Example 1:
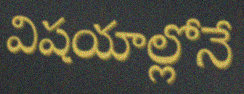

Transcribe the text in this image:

విషయాల్లోనే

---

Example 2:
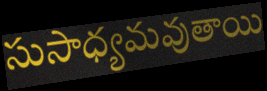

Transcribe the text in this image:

సుసాధ్యమవుతాయి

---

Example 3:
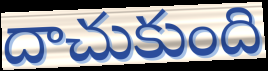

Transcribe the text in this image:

దాచుకుంది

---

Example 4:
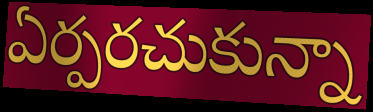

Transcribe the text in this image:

ఏర్పరచుకున్నా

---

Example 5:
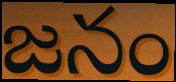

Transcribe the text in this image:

జనం